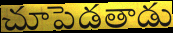
చూపెడతాడు